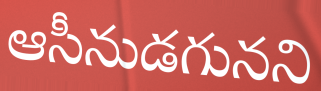
ఆసీనుడగునని